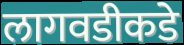
लागवडीकडे